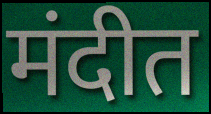
मंदीत